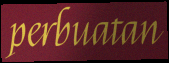
perbuatan